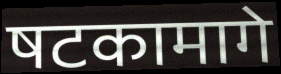
षटकामागे